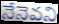
నేనెవని